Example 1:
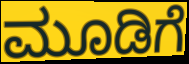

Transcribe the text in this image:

ಮೂಡಿಗೆ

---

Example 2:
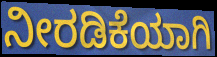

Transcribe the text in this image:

ನೀರಡಿಕೆಯಾಗಿ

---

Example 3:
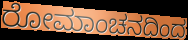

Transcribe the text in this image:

ರೋಮಾಂಚನದಿಂದ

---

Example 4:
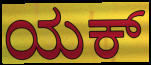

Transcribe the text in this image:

ಯಕ್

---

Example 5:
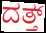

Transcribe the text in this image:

ದತ್ತ್